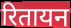
रितायन